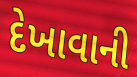
દેખાવાની